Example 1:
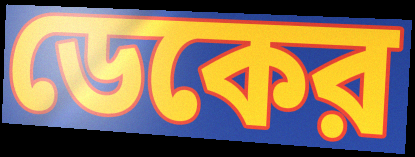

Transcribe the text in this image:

ডেকের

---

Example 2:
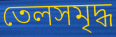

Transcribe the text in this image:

তেলসমৃদ্ধ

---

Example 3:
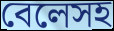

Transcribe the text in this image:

বেলেসহ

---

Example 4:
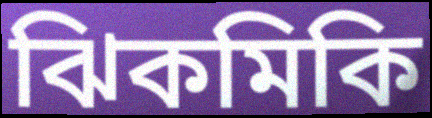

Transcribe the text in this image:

ঝিকমিকি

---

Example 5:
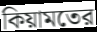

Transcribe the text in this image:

কিয়ামতের